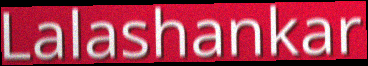
Lalashankar